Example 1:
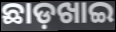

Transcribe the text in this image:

ଛାଡ଼ଖାଇ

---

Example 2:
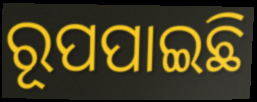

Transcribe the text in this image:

ରୂପପାଇଛି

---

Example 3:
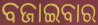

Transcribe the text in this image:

ବଜାଇବାର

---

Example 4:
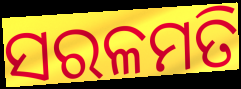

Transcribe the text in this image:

ସରଳମତି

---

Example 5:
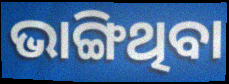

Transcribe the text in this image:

ଭାଙ୍ଗିଥିବା